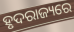
ହୃଦରାଜ୍ୟରେ